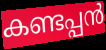
കണ്ടപ്പൻ